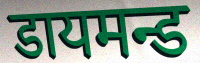
डायमन्ड